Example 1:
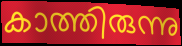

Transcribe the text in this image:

കാത്തിരുന്നു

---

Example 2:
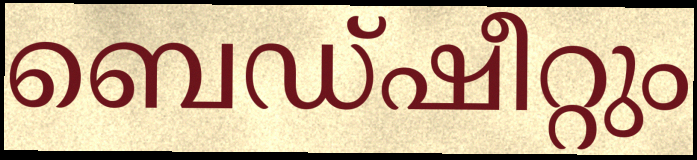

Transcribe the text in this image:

ബെഡ്ഷീറ്റും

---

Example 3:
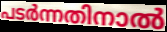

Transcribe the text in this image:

പടർന്നതിനാൽ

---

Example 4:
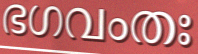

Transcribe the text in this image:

ഭഗവംതഃ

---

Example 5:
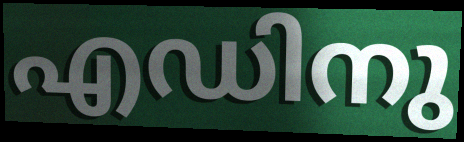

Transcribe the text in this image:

എഡിനു